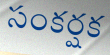
సంకర్షక